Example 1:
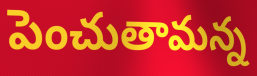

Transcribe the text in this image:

పెంచుతామన్న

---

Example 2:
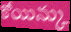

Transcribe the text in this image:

కోయిన్కు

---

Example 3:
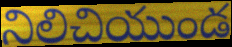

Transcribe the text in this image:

నిలిచియుండ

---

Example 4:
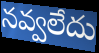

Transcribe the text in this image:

నవ్వలేదు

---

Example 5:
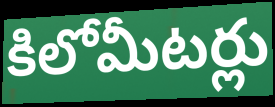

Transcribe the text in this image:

కిలోమీటర్లు